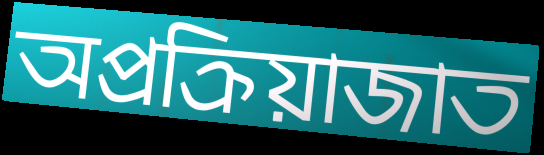
অপ্রক্রিয়াজাত